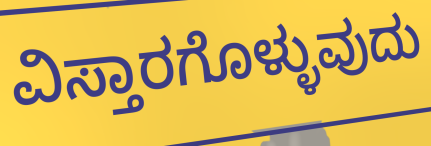
ವಿಸ್ತಾರಗೊಳ್ಳುವುದು